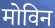
मोविन